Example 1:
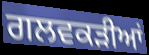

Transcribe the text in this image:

ਗਲਵਕੜੀਆਂ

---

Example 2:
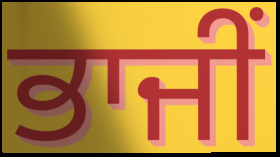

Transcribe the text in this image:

ਭਾਜੀਂ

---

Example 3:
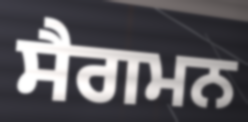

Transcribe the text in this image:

ਸੈਗਮਨ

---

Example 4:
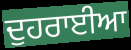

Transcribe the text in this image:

ਦੁਹਰਾਈਆ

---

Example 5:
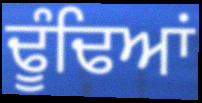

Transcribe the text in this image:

ਢੂੰਢਿਆਂ